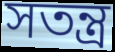
সতন্ত্র